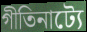
গীতিনাট্যে